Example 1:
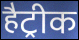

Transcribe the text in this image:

हैट्रीक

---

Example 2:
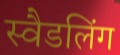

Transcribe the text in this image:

स्वैडलिंग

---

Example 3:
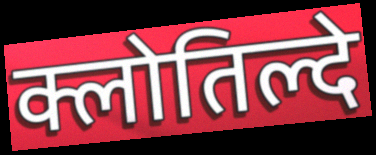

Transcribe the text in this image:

क्लोतिल्दे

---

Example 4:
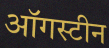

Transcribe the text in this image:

ऑगस्टीन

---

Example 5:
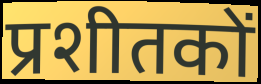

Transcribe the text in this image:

प्रशीतकों